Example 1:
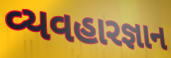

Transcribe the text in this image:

વ્યવહારજ્ઞાન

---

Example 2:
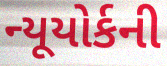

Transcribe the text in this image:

ન્યૂયોર્કની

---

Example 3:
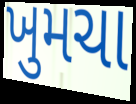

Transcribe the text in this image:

ખુમચા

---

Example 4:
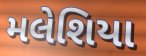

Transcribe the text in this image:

મલેશિયા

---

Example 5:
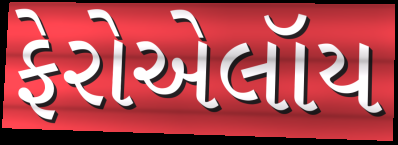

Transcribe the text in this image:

ફેરોએલૉય